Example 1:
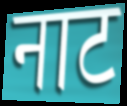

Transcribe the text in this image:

नाट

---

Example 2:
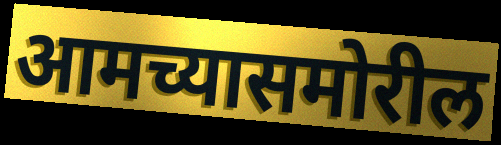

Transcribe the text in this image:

आमच्यासमोरील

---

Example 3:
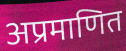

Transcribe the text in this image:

अप्रमाणित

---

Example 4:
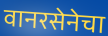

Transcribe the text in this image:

वानरसेनेचा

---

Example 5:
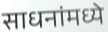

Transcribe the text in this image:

साधनांमध्ये